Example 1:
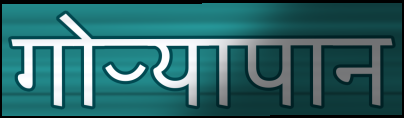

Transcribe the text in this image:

गोऱ्यापान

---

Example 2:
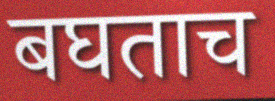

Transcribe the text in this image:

बघताच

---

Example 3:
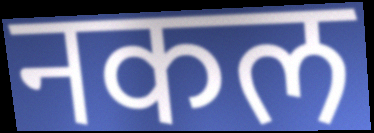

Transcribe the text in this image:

नकल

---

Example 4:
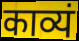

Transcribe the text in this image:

काव्यं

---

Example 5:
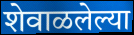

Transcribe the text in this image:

शेवाळलेल्या